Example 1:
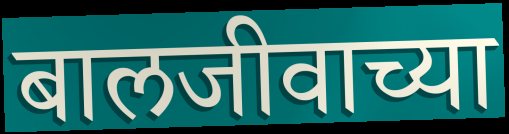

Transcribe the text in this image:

बालजीवाच्या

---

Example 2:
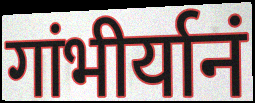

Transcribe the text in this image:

गांभीर्यानं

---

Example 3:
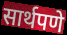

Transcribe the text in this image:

सार्थपणे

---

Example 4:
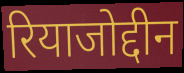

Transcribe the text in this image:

रियाजोद्दीन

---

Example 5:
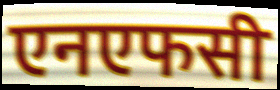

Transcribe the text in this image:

एनएफसी